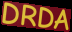
DRDA